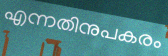
എന്നതിനുപകരം